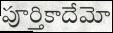
పూర్తికాదేమో